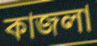
কাজলা